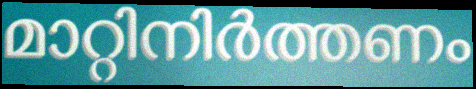
മാറ്റിനിർത്തണം